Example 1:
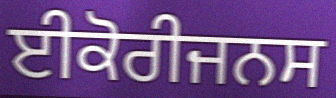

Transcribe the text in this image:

ਈਕੋਰੀਜਨਸ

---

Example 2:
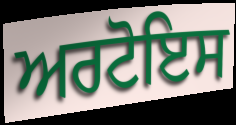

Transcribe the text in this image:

ਅਰਟੋਇਸ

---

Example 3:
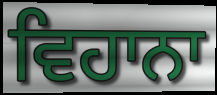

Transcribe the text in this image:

ਵਿਹਾਨਾ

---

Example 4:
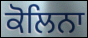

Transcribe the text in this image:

ਕੋਲਿਨਾ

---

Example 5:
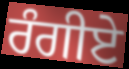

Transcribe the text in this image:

ਰੰਗੀਏ